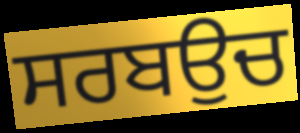
ਸਰਬਉਚ